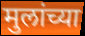
मुलांच्या